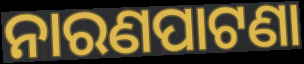
ନାରଣପାଟଣା